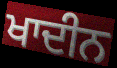
ਖਾਦੀਨ